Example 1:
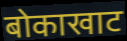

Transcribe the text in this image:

बोकाखाट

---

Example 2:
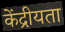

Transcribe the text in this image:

केंद्रीयता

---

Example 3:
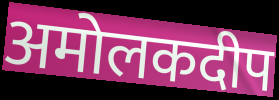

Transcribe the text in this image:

अमोलकदीप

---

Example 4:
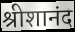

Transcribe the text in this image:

श्रीशानंद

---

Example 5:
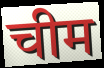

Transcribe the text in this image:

चीम